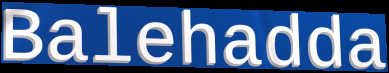
Balehadda